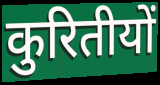
कुरितीयों